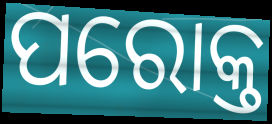
ପରୋକ୍ତ